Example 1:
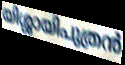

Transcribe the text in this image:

യിശ്ശായിപുത്രൻ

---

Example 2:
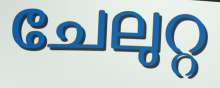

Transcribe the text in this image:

ചേലുറ്റ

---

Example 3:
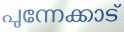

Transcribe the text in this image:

പുന്നേക്കാട്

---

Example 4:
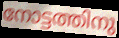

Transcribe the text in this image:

നോട്ടത്തിനു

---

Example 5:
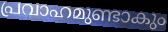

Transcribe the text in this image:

പ്രവാഹമുണ്ടാകും